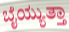
ಬೈಯ್ಯುತ್ತಾ